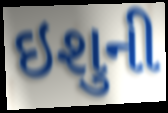
ઇશુની